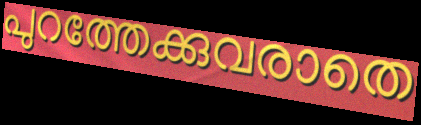
പുറത്തേക്കുവരാതെ